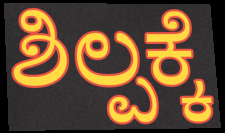
ಶಿಲ್ಪಕ್ಕೆ